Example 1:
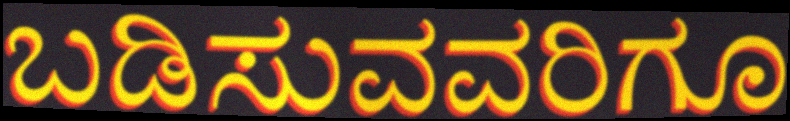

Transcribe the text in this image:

ಬಡಿಸುವವರಿಗೂ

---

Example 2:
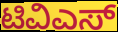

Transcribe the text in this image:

ಟಿವಿಎಸ್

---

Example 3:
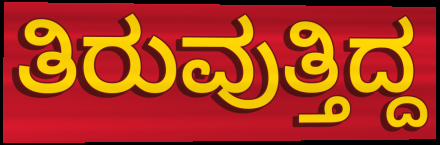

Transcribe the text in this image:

ತಿರುವುತ್ತಿದ್ದ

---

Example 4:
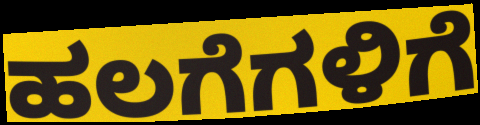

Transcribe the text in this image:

ಹಲಗೆಗಳಿಗೆ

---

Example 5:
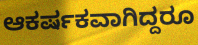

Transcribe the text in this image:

ಆಕರ್ಷಕವಾಗಿದ್ದರೂ